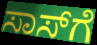
ಸಾಸ್‌ಗೆ